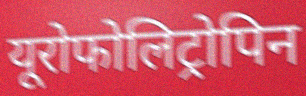
यूरोफोलिट्रोपिन